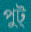
পুট্